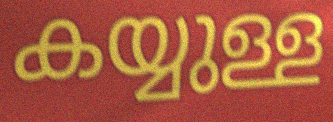
കയ്യുള്ള